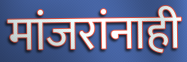
मांजरांनाही